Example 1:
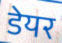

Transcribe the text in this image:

डेयर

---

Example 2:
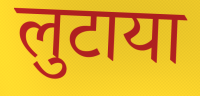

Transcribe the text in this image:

लुटाया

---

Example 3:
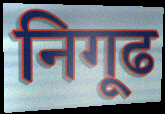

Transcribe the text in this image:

निगूढ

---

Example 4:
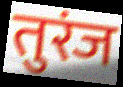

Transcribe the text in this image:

तुरंज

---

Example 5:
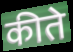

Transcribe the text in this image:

कीते